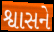
શ્વાસને